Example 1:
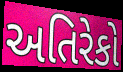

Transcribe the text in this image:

અતિરેકો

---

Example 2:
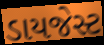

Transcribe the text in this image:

ડાયજેસ્ટ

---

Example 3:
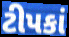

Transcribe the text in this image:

ટીપકાં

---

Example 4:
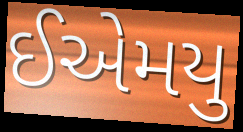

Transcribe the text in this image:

ઈએમયુ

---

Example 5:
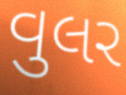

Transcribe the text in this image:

વુલર